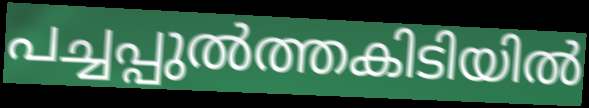
പച്ചപ്പുൽത്തകിടിയിൽ